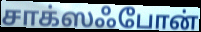
சாக்ஸஃபோன்